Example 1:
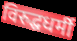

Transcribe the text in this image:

विरुद्धधर्मी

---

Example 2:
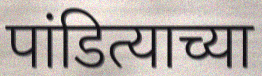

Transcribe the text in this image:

पांडित्याच्या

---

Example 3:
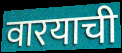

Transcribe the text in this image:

वारयाची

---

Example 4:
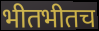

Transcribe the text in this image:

भीतभीतच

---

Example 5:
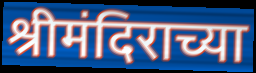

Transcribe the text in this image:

श्रीमंदिराच्या